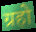
ग्रहो